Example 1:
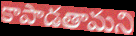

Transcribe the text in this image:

కాపాడతామని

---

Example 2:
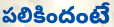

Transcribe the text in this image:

పలికిందంటే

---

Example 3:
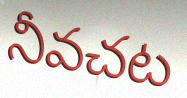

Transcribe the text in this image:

నీవచట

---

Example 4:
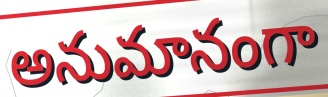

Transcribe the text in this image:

అనుమానంగా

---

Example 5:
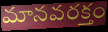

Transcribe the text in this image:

మానవరక్తం